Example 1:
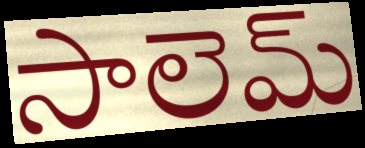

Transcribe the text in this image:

సాలెమ్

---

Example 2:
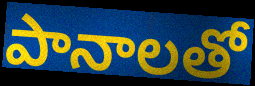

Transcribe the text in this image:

పానాలతో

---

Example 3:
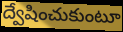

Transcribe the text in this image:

ద్వేషించుకుంటూ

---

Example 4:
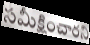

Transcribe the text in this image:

సమీక్షించారని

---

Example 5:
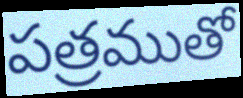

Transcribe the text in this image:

పత్రముతో